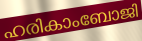
ഹരികാംബോജി